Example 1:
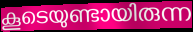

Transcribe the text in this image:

കൂടെയുണ്ടായിരുന്ന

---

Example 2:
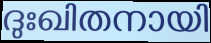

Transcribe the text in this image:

ദുഃഖിതനായി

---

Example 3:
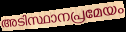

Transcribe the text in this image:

അടിസ്ഥാനപ്രമേയം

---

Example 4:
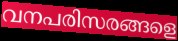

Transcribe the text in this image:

വനപരിസരങ്ങളെ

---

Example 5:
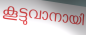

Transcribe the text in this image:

കൂട്ടുവാനായി